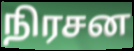
நிரசன